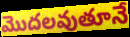
మొదలవుతూనే